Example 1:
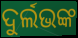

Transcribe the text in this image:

ଦୁର୍ଲଭଙ୍କ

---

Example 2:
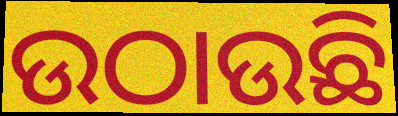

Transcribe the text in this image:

ଉଠାଉଛି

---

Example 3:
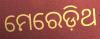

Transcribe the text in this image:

ମେରେଡ଼ିଥ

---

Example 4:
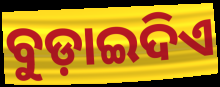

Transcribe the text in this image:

ବୁଡ଼ାଇଦିଏ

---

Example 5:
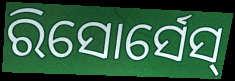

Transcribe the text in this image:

ରିସୋର୍ସେସ୍